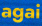
agai